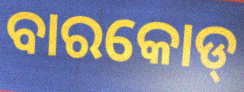
ବାରକୋଡ୍